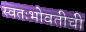
स्वतःभोवतीची